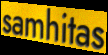
samhitas